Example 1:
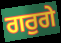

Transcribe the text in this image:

ਗਰੁਗੇ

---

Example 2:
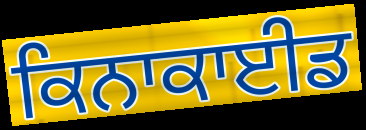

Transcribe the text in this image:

ਕਿਨਾਕਾਈਡ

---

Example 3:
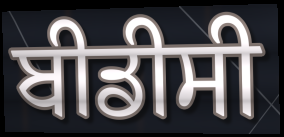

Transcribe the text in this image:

ਬੀਡੀਸੀ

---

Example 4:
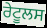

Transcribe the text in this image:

ਰੇਟੂਲਸ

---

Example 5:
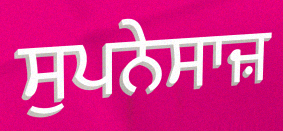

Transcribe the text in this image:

ਸੁਪਨੇਸਾਜ਼